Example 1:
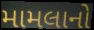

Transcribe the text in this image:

મામલાનો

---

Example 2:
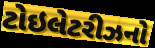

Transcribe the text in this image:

ટોઇલેટરીઝનો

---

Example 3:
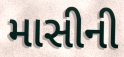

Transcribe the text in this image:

માસીની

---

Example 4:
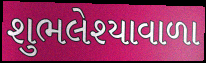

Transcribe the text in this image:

શુભલેશ્યાવાળા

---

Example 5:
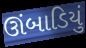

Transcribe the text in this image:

ઊંબાડિયું